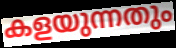
കളയുന്നതും